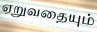
ஏறுவதையும்